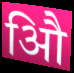
औि